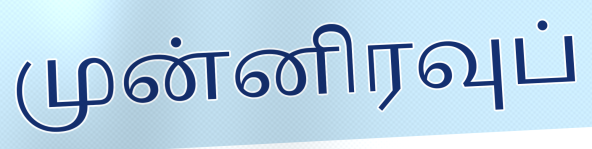
முன்னிரவுப்